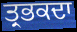
ਤ੍ਰਭਕਦਾ